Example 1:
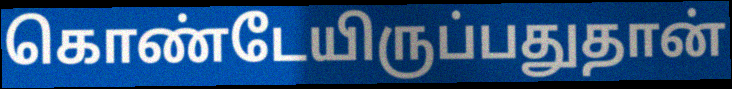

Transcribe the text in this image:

கொண்டேயிருப்பதுதான்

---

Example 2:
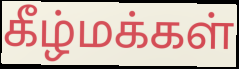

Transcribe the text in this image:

கீழ்மக்கள்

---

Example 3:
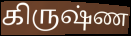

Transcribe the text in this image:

கிருஷ்ண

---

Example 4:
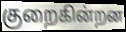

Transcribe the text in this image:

குறைகின்றன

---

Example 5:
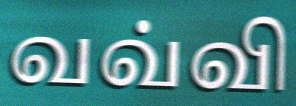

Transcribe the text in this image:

வவ்வி